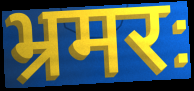
भ्रमरः